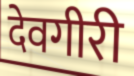
देवगीरी